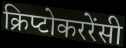
क्रिप्टोकररेंसी